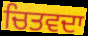
ਚਿਤਵਦਾ